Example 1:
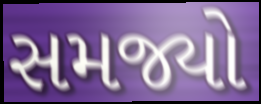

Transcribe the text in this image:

સમજ્યો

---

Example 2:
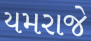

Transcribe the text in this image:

યમરાજે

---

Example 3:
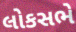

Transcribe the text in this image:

લોકસભે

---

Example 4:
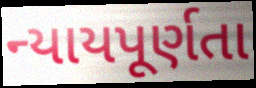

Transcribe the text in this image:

ન્યાયપૂર્ણતા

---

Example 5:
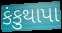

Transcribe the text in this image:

કંકુથાપા